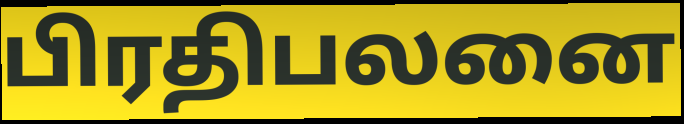
பிரதிபலனை